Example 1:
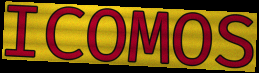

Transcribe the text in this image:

ICOMOS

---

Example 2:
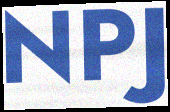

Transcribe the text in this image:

NPJ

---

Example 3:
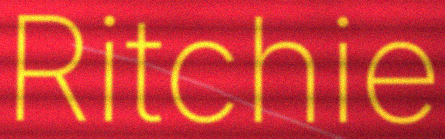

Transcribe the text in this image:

Ritchie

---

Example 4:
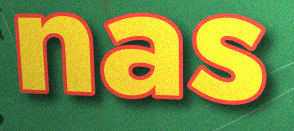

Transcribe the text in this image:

nas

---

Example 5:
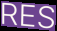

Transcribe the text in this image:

RES